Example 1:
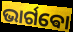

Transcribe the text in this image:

ଭାର୍ଗଵୋ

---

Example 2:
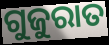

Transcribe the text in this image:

ଗୁଜୁରାତ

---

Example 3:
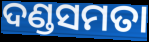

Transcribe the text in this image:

ଦଣ୍ଡସମତା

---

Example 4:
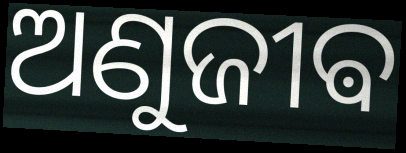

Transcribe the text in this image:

ଅଣୁଜୀଵ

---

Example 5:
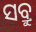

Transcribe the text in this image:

ସବ୍ରୁ